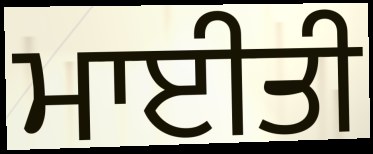
ਮਾਈਤੀ